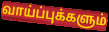
வாய்ப்புக்களும்